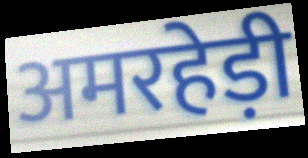
अमरहेड़ी